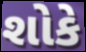
શોકે